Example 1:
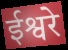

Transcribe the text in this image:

ईश्वरे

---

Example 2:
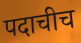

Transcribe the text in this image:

पदाचीच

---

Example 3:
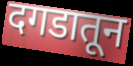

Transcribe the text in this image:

दगडातून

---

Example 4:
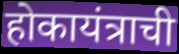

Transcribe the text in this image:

होकायंत्राची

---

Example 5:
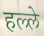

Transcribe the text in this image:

हल्ले